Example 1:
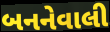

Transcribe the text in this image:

બનનેવાલી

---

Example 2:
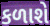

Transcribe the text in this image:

કળાશે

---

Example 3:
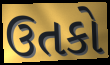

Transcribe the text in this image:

ઉતકો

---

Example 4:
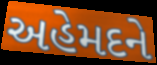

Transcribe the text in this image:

અહેમદને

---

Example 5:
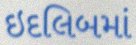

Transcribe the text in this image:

ઇદલિબમાં